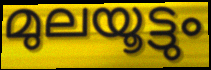
മുലയൂട്ടും